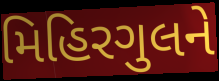
મિહિરગુલને